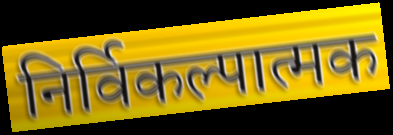
निर्विकल्पात्मक